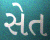
સેત